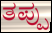
ತಪ್ಪು